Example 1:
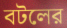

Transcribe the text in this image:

বটলের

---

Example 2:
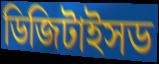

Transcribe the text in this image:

ডিজিটাইসড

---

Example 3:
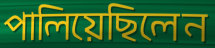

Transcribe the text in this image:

পালিয়েছিলেন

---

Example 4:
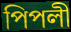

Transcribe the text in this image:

পিপলী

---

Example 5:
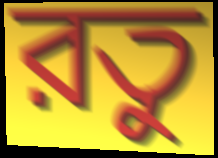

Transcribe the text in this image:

রতু